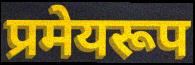
प्रमेयरूप